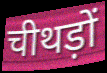
चीथड़ों